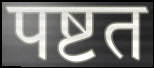
पष्टत